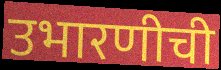
उभारणीची